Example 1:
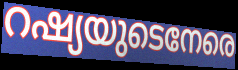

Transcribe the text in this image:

റഷ്യയുടെനേരെ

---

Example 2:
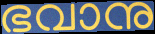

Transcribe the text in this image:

ഭവാനു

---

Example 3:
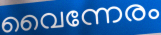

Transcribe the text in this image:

വൈന്നേരം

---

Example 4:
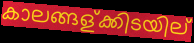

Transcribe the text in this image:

കാലങ്ങള്ക്കിടയില്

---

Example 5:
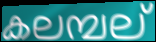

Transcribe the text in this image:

കലമ്പല്